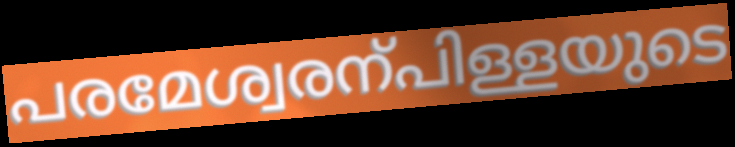
പരമേശ്വരന്പിള്ളയുടെ